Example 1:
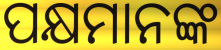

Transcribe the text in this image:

ପକ୍ଷମାନଙ୍କ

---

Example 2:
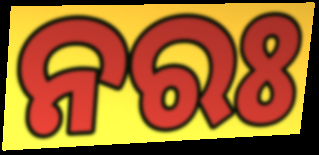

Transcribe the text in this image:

ନରଃ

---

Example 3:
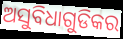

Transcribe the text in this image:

ଅସୁବିଧାଗୁଡିକର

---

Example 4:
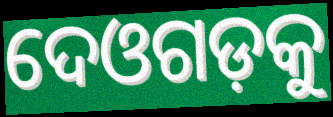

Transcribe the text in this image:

ଦେଓଗଡ଼କୁ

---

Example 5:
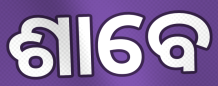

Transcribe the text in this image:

ଶାବେ